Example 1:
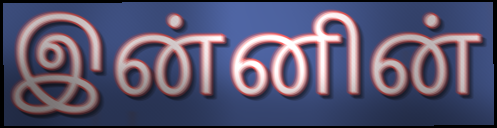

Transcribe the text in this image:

இன்னின்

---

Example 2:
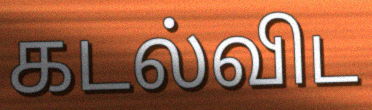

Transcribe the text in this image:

கடல்விட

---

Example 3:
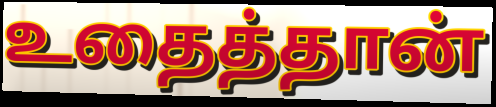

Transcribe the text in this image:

உதைத்தான்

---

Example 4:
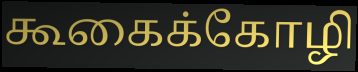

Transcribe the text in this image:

கூகைக்கோழி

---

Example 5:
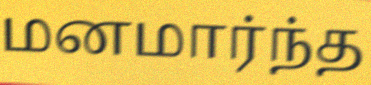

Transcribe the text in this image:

மனமார்ந்த